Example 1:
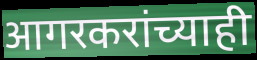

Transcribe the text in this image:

आगरकरांच्याही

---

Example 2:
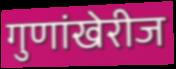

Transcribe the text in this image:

गुणांखेरीज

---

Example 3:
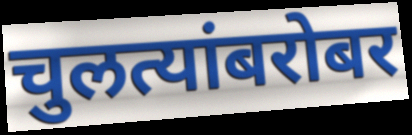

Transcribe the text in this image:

चुलत्यांबरोबर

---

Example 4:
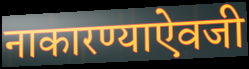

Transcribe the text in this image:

नाकारण्याऐवजी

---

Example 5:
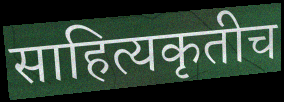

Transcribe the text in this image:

साहित्यकृतीच